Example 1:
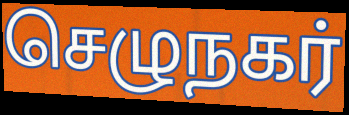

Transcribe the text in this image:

செழுநகர்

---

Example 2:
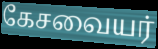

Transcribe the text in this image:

கேசவையர்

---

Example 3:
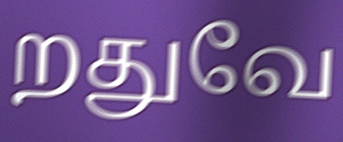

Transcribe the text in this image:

றதுவே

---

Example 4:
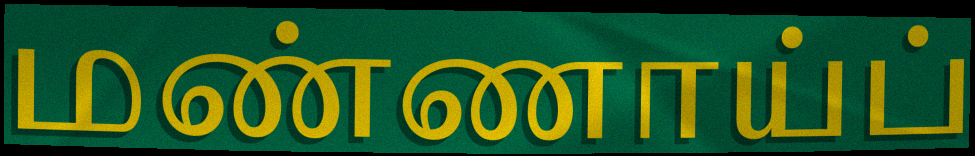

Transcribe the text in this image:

மண்ணாய்ப்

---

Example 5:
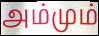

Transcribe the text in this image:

அம்மும்